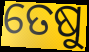
ତେଷୁ